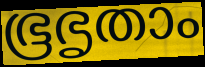
ഭൂഭൃതാം